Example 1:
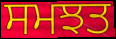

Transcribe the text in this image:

ਸਮਝਤ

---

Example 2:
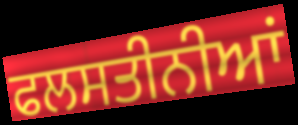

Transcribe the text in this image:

ਫਲਸਤੀਨੀਆਂ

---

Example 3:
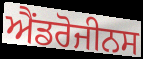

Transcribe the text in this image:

ਐਂਡਰੋਜੀਨਸ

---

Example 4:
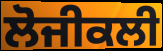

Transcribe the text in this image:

ਲੋਜੀਕਲੀ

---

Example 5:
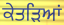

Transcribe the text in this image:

ਕੇਤੜਿਆਂ